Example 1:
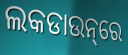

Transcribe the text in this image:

ଲକଡାଉନ୍‌ରେ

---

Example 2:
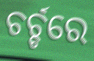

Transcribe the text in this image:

ଚର୍ଚ୍ଚରେ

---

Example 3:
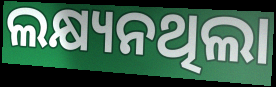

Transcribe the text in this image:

ଲକ୍ଷ୍ୟନଥିଲା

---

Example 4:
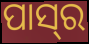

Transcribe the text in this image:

ପାସ୍‍ର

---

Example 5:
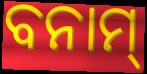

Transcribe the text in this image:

ବନାମ୍